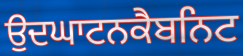
ਉਦਘਾਟਨਕੈਬਨਿਟ